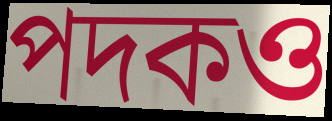
পদকও